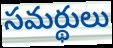
సమర్థులు